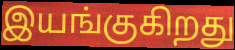
இயங்குகிறது